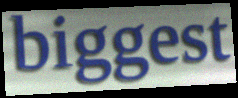
biggest